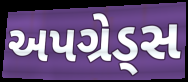
અપગ્રેડ્સ